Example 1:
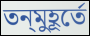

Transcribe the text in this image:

তন্‌মুহূর্তে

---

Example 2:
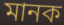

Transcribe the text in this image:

মানক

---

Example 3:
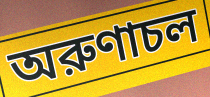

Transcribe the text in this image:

অরুণাচল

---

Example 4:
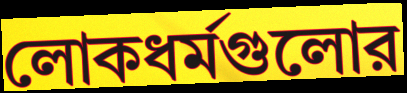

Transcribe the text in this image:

লোকধর্মগুলোর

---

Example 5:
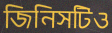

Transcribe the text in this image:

জিনিসটিও